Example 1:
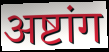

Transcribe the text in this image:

अष्टांग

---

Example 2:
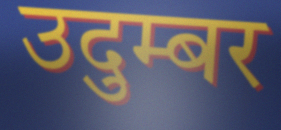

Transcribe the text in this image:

उदुम्बर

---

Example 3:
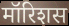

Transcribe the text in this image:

मॉरिशस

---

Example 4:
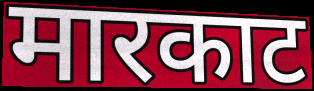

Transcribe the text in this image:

मारकाट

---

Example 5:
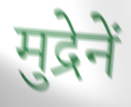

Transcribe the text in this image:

मुद्रेनें